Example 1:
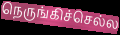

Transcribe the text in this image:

நெருங்கிச்செல்ல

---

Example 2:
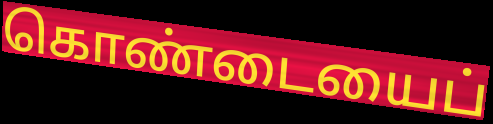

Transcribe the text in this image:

கொண்டையைப்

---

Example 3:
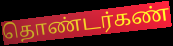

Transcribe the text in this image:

தொண்டர்கண்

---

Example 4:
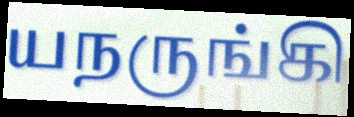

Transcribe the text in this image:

யநருங்கி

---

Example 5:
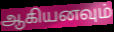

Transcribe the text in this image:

ஆகியனவும்